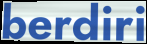
berdiri